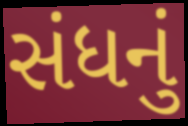
સંધનું